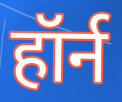
हॉर्न